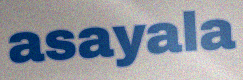
asayala